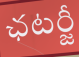
ఛటర్జీ